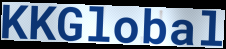
KKGlobal